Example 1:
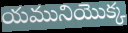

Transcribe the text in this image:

యమునియొక్క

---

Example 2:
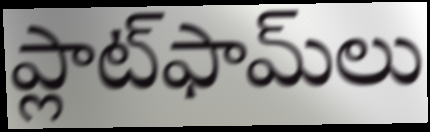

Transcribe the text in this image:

ప్లాట్‌ఫామ్‌లు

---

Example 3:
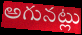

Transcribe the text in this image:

అగునట్లు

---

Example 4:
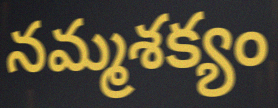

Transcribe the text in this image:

నమ్మశక్యం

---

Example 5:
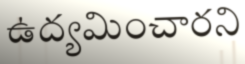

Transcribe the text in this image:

ఉద్యమించారని